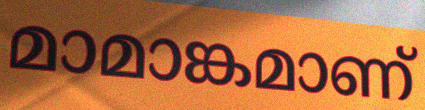
മാമാങ്കമാണ്